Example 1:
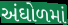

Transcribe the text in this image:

અંઘોળમાં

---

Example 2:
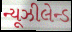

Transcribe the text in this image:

ન્યૂઝીલેન્ડ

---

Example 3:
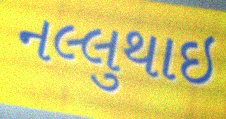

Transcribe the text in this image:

નલ્લુથાઇ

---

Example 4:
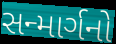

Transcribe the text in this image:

સન્માર્ગનો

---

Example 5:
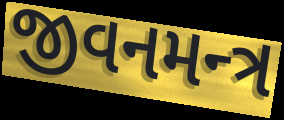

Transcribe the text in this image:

જીવનમન્ત્ર